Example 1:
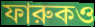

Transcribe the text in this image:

ফারুকও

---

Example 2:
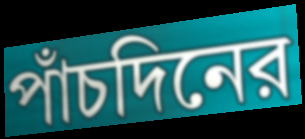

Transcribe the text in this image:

পাঁচদিনের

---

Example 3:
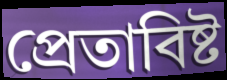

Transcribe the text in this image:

প্রেতাবিষ্ট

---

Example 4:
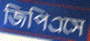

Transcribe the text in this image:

জিপিএসে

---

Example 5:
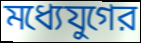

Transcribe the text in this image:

মধ্যেযুগের